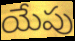
యేపు